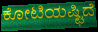
ಕೋಟಿಯಷ್ಟಿದೆ